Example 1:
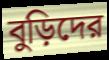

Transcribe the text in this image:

বুড়িদের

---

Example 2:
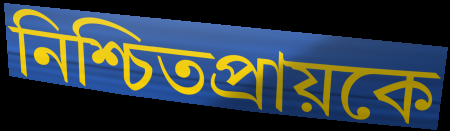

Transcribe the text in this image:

নিশ্চিতপ্রায়কে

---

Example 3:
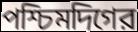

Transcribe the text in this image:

পশ্চিমদিগের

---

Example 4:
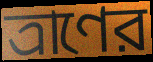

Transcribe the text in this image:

ত্রাণের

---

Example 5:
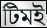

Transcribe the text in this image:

টিমই